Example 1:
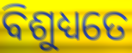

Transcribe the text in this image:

ବିଶୁଧ୍ୟତେ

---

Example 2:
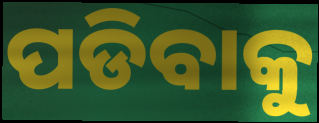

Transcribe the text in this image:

ପଡିବାକୁ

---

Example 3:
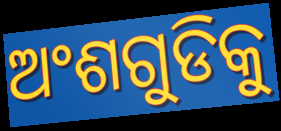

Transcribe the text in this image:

ଅଂଶଗୁଡିକୁ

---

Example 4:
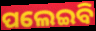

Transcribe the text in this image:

ପଲେଇବି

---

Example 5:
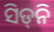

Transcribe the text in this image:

ସିଡ୍‍ନି